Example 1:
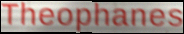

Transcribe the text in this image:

Theophanes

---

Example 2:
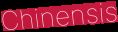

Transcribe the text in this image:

Chinensis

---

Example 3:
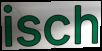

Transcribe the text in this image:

isch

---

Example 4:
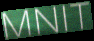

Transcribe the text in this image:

MNIT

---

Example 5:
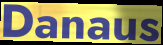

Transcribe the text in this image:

Danaus